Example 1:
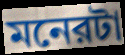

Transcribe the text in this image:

মনেরটা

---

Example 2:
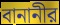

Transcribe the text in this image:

বানানীর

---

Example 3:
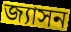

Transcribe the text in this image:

জ্যাসন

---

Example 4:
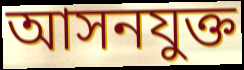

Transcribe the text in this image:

আসনযুক্ত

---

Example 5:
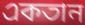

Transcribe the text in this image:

একতান